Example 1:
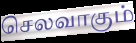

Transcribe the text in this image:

செலவாகும்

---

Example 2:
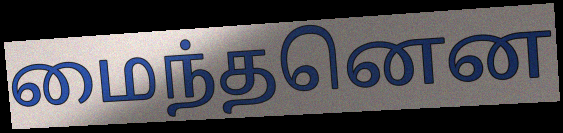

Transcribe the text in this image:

மைந்தனென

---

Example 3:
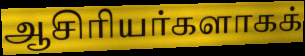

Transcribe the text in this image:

ஆசிரியர்களாகக்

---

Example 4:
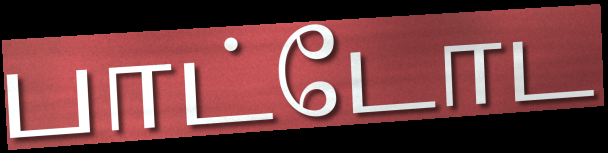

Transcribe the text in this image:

பாட்டோட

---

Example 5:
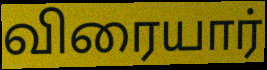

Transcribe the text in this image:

விரையார்